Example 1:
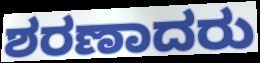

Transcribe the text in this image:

ಶರಣಾದರು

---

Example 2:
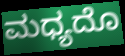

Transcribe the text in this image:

ಮಧ್ಯದೊ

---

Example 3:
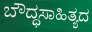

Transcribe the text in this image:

ಬೌದ್ಧಸಾಹಿತ್ಯದ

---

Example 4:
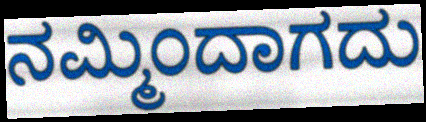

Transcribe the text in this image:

ನಮ್ಮಿಂದಾಗದು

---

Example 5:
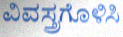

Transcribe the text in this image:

ವಿವಸ್ತ್ರಗೊಳಿಸಿ